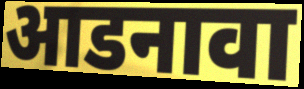
आडनावा